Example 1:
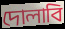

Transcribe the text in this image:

দোলাবি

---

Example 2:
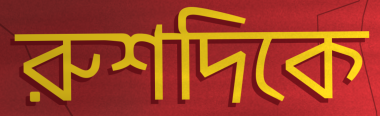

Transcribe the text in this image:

রুশদিকে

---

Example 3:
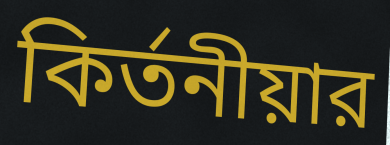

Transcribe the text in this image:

কির্তনীয়ার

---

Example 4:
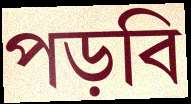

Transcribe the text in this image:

পড়বি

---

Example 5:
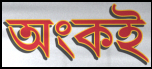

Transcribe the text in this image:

অংকই